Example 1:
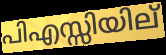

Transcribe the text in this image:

പിഎസ്സിയില്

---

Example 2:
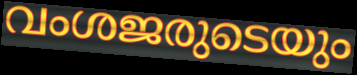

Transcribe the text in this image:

വംശജരുടെയും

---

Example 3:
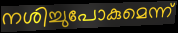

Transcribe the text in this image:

നശിച്ചുപോകുമെന്ന്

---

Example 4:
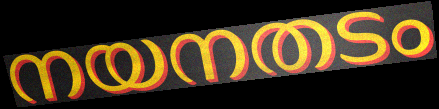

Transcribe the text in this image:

നയനതടം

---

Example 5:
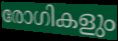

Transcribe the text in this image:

രോഗികളും